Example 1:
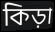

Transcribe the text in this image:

কিড়া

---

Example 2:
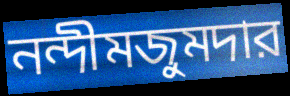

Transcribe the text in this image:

নন্দীমজুমদার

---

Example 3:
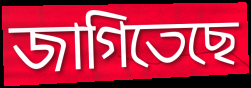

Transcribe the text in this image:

জাগিতেছে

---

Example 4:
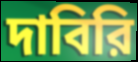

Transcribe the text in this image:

দাবিরি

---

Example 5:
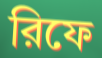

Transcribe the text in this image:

রিফে